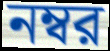
নম্বর